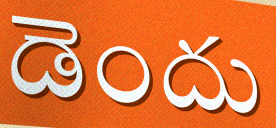
డెందు